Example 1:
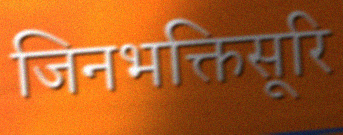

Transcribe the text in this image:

जिनभक्तिसूरि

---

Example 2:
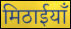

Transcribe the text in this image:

मिठाईयाँ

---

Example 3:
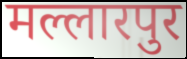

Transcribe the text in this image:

मल्लारपुर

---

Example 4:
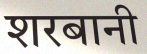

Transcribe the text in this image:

शरबानी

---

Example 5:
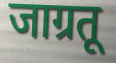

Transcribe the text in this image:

जाग्रतू